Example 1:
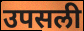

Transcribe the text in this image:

उपसली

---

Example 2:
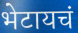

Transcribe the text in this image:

भेटायचं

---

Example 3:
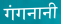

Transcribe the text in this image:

गंगनानी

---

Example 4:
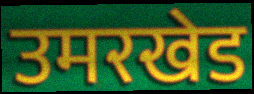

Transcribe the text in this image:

उमरखेड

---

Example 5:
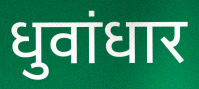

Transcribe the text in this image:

धुवांधार